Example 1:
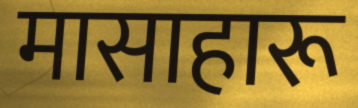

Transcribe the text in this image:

मासाहारू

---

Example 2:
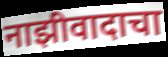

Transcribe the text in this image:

नाझीवादाचा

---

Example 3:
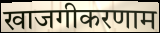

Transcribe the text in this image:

खाजगीकरणाम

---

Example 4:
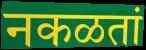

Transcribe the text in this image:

नकळतां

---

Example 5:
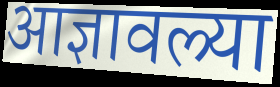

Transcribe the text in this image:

आज्ञावल्या